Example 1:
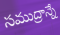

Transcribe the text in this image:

సముద్రాన్నే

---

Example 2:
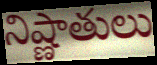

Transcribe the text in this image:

నిష్ణాతులు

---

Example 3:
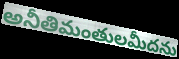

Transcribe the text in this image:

అనీతిమంతులమీదను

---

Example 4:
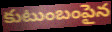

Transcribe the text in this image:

కుటుంబంపైన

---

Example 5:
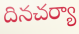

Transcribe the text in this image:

దినచర్యా